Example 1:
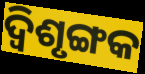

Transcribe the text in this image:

ଦ୍ଵିଶୃଙ୍ଗକ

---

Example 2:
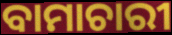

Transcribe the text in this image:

ବାମାଚାରୀ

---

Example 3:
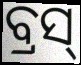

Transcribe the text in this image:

ବ୍ରସ୍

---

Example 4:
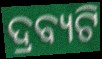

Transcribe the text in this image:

ଦ୍ରବ୍ୟଟି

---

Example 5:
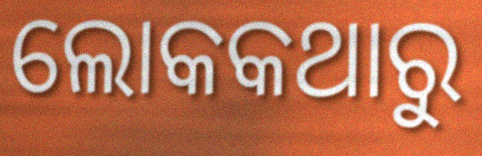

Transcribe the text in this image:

ଲୋକକଥାରୁ